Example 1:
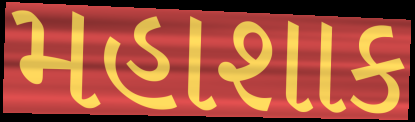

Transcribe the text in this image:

મહાશાક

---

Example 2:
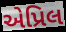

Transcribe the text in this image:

એપ્રિલ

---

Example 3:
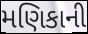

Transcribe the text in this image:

મણિકાની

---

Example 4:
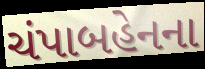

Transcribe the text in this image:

ચંપાબહેનના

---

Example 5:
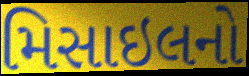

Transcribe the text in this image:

મિસાઇલનો